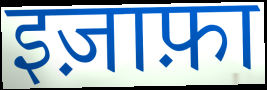
इज़ाफ़ा